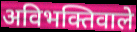
अविभक्तिवाले